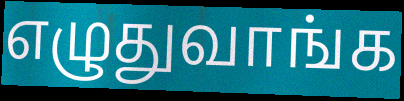
எழுதுவாங்க